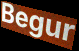
Begur